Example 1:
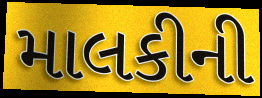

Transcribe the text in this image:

માલકીની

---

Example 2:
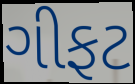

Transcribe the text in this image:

ગીફટ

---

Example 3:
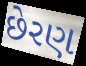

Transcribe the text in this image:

છેરણ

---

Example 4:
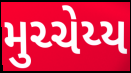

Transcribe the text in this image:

મુચ્ચેય્ય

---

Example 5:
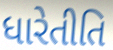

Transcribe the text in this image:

ધારેતીતિ